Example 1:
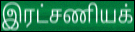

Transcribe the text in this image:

இரட்சணியக்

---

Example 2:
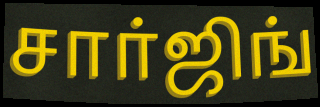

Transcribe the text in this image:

சார்ஜிங்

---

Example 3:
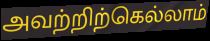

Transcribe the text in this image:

அவற்றிற்கெல்லாம்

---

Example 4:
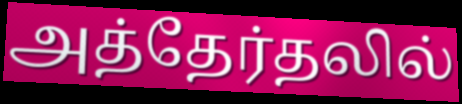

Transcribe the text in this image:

அத்தேர்தலில்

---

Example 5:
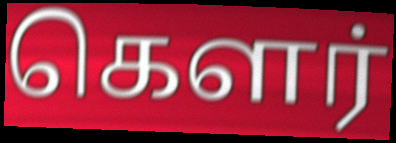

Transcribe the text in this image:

கௌர்